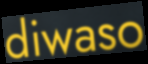
diwaso